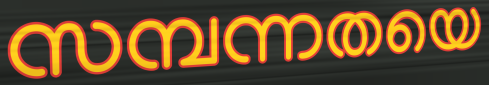
സമ്പന്നതയെ